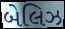
બેલિઝ